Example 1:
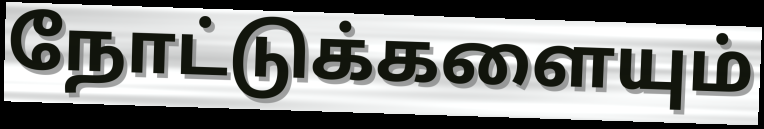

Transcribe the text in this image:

நோட்டுக்களையும்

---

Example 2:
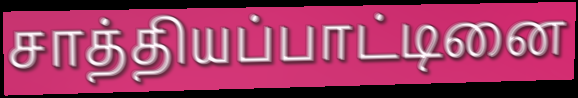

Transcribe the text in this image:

சாத்தியப்பாட்டினை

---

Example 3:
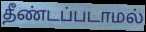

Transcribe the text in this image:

தீண்டப்படாமல்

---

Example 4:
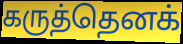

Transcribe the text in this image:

கருத்தெனக்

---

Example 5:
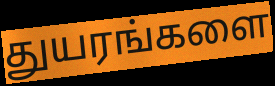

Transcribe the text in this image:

துயரங்களை